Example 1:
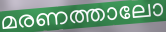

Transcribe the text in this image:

മരണത്താലോ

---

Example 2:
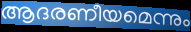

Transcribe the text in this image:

ആദരണീയമെന്നും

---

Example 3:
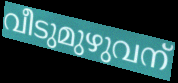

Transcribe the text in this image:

വീടുമുഴുവന്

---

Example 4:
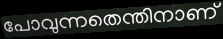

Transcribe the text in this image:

പോവുന്നതെന്തിനാണ്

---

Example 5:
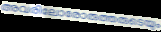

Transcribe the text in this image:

അവരിലോരോരുത്തരുടെയും